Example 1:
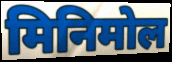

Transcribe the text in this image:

मिनिमोल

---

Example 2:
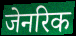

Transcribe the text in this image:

जेनरिक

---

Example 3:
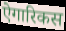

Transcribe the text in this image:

ऐगारिकस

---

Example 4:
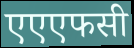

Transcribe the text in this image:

एएएफसी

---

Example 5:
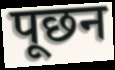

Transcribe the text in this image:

पूछन